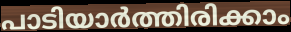
പാടിയാർത്തിരിക്കാം